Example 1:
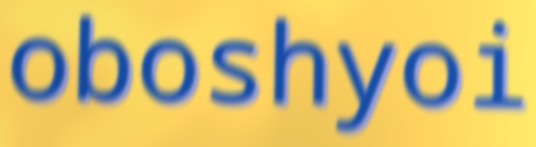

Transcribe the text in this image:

oboshyoi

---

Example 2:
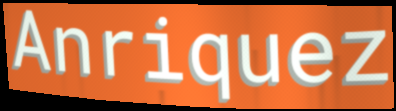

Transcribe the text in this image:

Anriquez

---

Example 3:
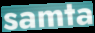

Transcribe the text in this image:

samta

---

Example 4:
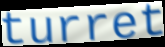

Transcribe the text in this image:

turret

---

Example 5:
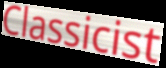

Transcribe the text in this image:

Classicist